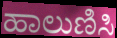
ಹಾಲುಣಿಸಿ